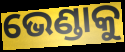
ଭେଣ୍ଡାକୁ